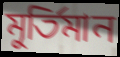
মুর্তিমান